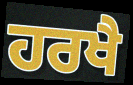
ਹਰਖੈ